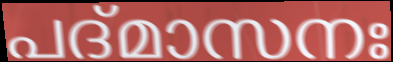
പദ്മാസനഃ